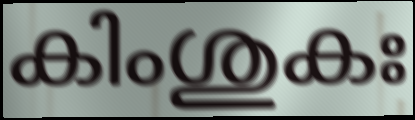
കിംശുകഃ